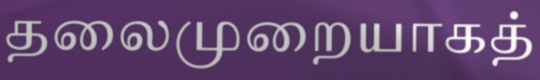
தலைமுறையாகத்